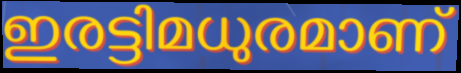
ഇരട്ടിമധുരമാണ്